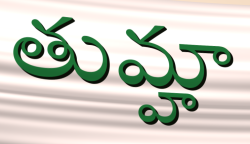
తుమ్హా